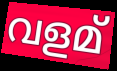
വളമ്